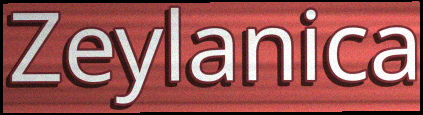
Zeylanica